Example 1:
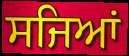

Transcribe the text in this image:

ਸਜਿਆਂ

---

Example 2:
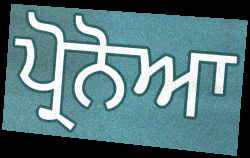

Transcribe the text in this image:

ਪ੍ਰੋਨੋਆ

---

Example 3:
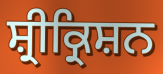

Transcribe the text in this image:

ਸ਼੍ਰੀਕ੍ਰਿਸ਼ਨ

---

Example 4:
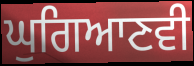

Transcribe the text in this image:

ਘੁਗਿਆਣਵੀ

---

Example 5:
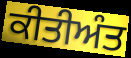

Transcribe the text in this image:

ਕੀਤੀਅੰਤ